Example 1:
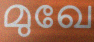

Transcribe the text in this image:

മുഖേ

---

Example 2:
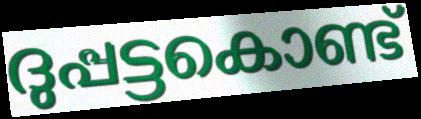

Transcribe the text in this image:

ദുപ്പട്ടകൊണ്ട്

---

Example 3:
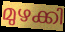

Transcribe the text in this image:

മുഴക്കി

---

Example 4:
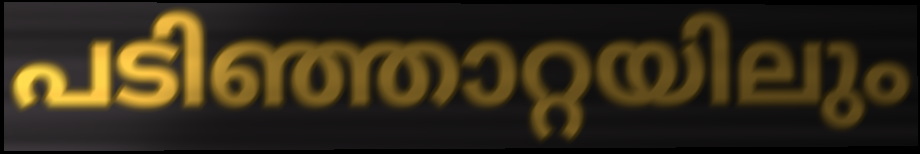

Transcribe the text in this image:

പടിഞ്ഞാറ്റയിലും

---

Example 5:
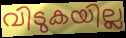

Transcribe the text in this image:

വിടുകയില്ല